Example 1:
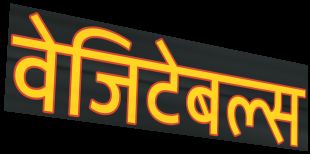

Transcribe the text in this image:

वेजिटेबल्स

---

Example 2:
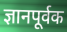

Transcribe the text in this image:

ज्ञानपूर्वक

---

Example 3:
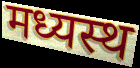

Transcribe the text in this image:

मध्यस्थ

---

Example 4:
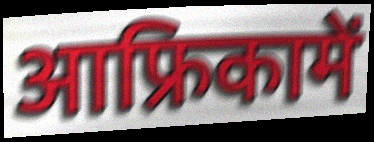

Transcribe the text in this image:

आफ्रिकामें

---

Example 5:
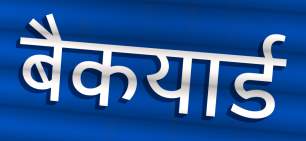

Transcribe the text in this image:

बैकयार्ड